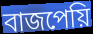
বাজপেয়ি